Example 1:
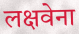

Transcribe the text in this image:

लक्षवेना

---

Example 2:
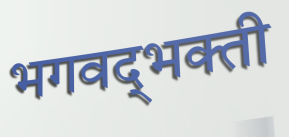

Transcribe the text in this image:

भगवद्‌भक्ती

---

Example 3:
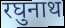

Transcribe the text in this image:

रघुनाथ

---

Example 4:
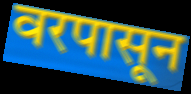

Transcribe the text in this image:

वरपासून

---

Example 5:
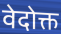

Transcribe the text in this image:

वेदोक्त